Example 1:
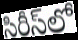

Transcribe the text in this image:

సిరీస్‌లో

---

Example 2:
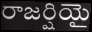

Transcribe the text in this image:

రాజర్షియై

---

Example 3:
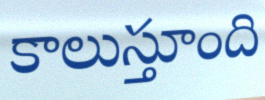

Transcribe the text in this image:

కాలుస్తూంది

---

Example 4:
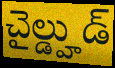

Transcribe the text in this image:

చైల్డ్హుడ్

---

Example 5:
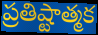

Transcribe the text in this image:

ప్రతిష్టాత్మక